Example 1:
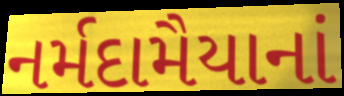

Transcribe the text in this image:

નર્મદામૈયાનાં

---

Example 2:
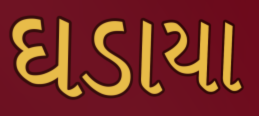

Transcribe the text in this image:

ઘડાયા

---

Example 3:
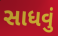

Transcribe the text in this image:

સાધવું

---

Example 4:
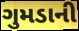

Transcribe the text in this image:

ગુમડાની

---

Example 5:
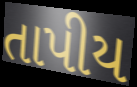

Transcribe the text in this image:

તાપીય